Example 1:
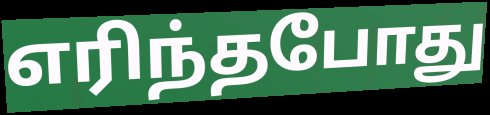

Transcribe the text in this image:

எரிந்தபோது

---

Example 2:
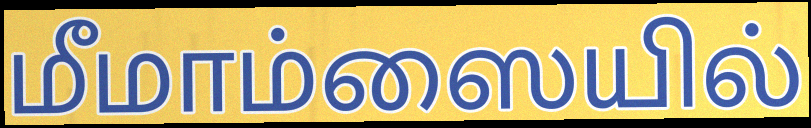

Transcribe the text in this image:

மீமாம்ஸையில்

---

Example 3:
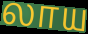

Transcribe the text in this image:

லாய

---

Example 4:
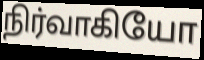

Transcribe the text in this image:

நிர்வாகியோ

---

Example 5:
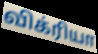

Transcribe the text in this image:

விக்ரியா